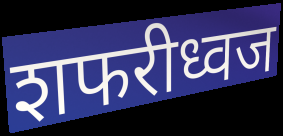
शफरीध्वज